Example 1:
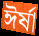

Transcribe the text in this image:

ঈৰ্ষা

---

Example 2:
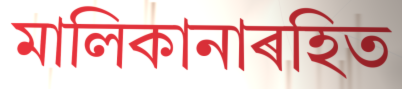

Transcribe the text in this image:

মালিকানাৰহিত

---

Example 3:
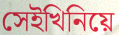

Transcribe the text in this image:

সেইখিনিয়ে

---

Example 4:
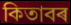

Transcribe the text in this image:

কিতাবৰ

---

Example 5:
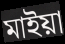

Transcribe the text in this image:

মাইয়া